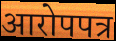
आरोपपत्र